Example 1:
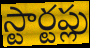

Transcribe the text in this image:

స్టార్టప్లు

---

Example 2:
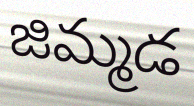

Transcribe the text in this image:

జిమ్మడ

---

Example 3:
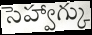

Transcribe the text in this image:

సెహ్వాగ్కు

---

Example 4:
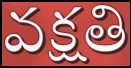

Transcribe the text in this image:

వక్షతి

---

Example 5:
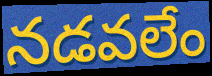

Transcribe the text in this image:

నడవలేం